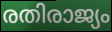
രതിരാജ്യം